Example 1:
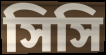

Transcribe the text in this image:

সিসি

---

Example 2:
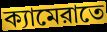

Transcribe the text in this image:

ক্যামেরাতে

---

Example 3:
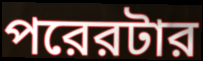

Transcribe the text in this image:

পরেরটার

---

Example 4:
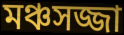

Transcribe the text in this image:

মঞ্চসজ্জা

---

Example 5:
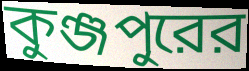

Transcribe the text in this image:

কুঞ্জপুরের